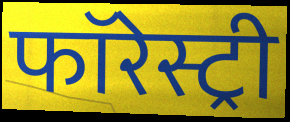
फॉरेस्ट्री